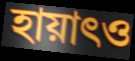
হায়াৎও